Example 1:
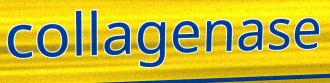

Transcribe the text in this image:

collagenase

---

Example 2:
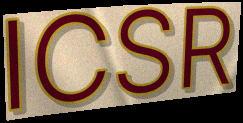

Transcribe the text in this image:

ICSR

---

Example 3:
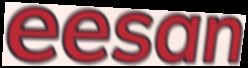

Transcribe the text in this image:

eesan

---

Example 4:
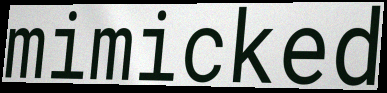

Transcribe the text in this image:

mimicked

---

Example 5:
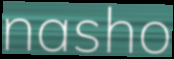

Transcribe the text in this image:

nasho